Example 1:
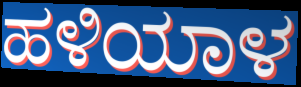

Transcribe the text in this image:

ಹಳಿಯಾಳ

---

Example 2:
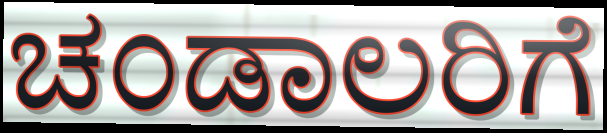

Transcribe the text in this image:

ಚಂಡಾಲರಿಗೆ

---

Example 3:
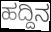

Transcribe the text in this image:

ಹದ್ದಿನ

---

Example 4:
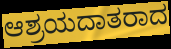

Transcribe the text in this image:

ಆಶ್ರಯದಾತರಾದ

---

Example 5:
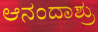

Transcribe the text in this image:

ಆನಂದಾಶ್ರು